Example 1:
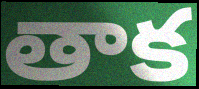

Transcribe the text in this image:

తాక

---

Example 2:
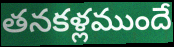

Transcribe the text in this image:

తనకళ్లముందే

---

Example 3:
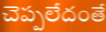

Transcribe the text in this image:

చెప్పలేదంతే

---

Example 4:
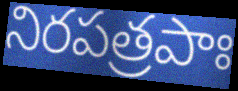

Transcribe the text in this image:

నిరపత్రపాః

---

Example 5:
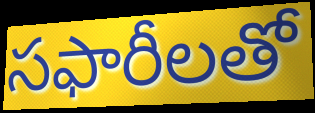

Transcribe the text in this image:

సఫారీలతో